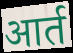
आर्त